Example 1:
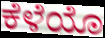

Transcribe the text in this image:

ಕೆಳೆಯೊ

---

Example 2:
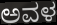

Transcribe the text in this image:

ಅವಳ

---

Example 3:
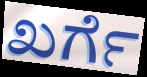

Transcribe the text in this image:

ಖರ್ಗೆ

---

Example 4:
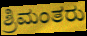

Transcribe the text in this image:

ಶ್ರಿಮಂತರು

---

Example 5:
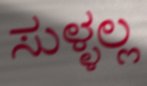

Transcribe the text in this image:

ಸುಳ್ಳಲ್ಲ